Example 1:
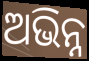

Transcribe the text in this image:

ଅଭିନ୍ନ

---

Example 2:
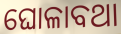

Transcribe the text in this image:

ଘୋଳାବଥା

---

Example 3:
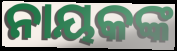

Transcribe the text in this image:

ନାୟକଙ୍କ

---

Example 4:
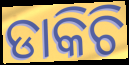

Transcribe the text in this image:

ଡାକିଚି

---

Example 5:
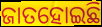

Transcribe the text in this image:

ଜାତହୋଇଛି